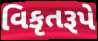
વિકૃતરૂપે